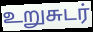
உறுசுடர்